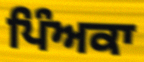
ਪਿੰਅਕਾ